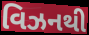
વિઝનથી